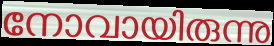
നോവായിരുന്നു